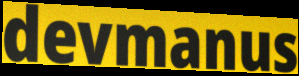
devmanus